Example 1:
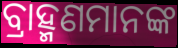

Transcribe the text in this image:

ବ୍ରାହ୍ମଣମାନଙ୍କ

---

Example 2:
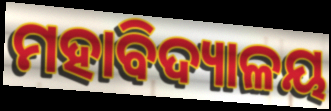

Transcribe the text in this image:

ମହାବିଦ୍ୟାଳୟ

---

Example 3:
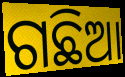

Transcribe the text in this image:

ଗଛିଆ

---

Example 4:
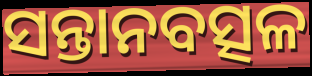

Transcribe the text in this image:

ସନ୍ତାନବତ୍ସଳ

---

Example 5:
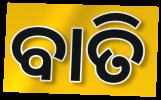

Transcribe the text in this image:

ବାତି